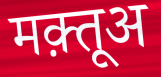
मक़्तूअ